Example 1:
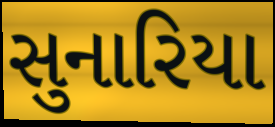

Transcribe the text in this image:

સુનારિયા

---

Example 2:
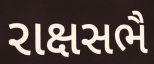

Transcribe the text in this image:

રાક્ષસભૈ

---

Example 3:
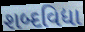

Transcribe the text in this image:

શબ્દવિદ્યા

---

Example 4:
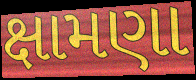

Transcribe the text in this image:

ક્ષામણા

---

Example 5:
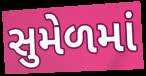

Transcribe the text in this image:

સુમેળમાં